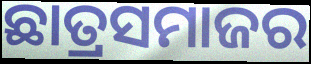
ଛାତ୍ରସମାଜର